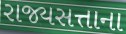
રાજ્યસત્તાના